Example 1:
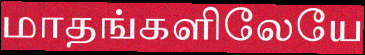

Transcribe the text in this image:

மாதங்களிலேயே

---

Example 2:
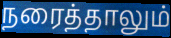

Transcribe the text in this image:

நரைத்தாலும்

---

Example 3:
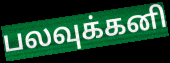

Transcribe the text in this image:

பலவுக்கனி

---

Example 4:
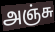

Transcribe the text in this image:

அஞ்சு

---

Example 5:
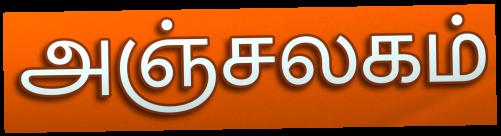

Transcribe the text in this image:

அஞ்சலகம்